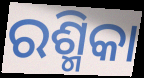
ରଶ୍ମିକା